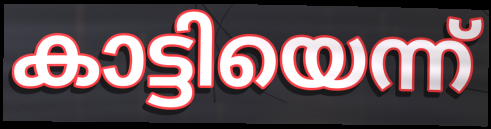
കാട്ടിയെന്ന്